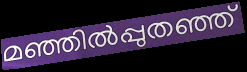
മഞ്ഞിൽപ്പുതഞ്ഞ്